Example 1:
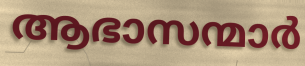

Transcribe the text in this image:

ആഭാസന്മാർ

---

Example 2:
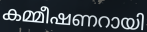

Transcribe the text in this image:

കമ്മീഷണറായി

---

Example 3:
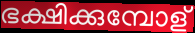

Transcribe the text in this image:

ഭക്ഷിക്കുമ്പോള്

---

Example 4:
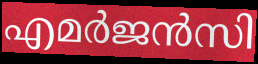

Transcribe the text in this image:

എമർജൻസി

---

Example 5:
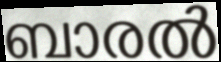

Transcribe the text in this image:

ബാരൽ